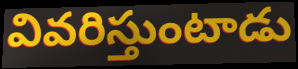
వివరిస్తుంటాడు